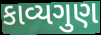
કાવ્યગુણ